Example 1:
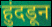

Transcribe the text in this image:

हुंदडून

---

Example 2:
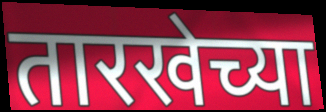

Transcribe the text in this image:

तारखेच्या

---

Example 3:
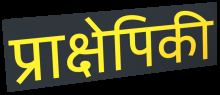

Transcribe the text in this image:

प्राक्षेपिकी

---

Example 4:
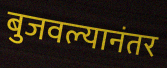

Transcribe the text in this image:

बुजवल्यानंतर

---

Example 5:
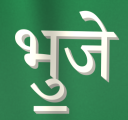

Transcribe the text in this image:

भु॒जे